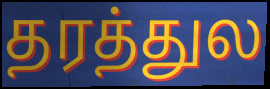
தரத்துல